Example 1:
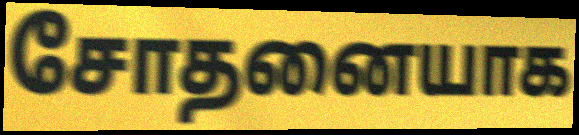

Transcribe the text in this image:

சோதனையாக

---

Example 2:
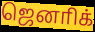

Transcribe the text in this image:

ஜெனரிக்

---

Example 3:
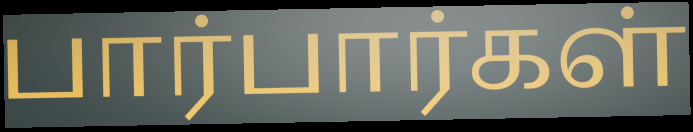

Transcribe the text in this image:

பார்பார்கள்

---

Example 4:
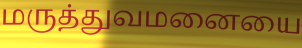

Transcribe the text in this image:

மருத்துவமனையை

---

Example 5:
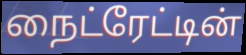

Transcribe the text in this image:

நைட்ரேட்டின்